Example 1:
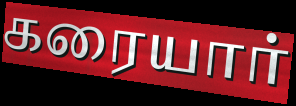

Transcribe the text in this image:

கரையார்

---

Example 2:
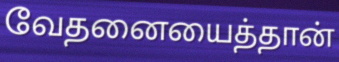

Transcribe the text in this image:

வேதனையைத்தான்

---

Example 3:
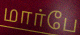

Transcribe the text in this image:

மார்பே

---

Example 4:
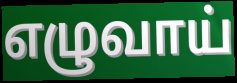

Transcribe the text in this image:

எழுவாய்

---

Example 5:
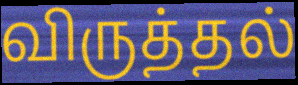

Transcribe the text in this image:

விருத்தல்